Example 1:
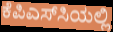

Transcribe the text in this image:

ಕೆಪಿಎಸ್‌ಸಿಯಲ್ಲಿ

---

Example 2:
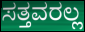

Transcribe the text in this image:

ಸತ್ತವರಲ್ಲ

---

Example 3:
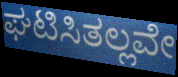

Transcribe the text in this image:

ಘಟಿಸಿತಲ್ಲವೇ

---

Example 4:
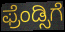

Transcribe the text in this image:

ಫ್ರೆಂಡ್ಸಿಗೆ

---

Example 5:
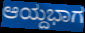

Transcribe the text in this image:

ಆಯ್ದಭಾಗ